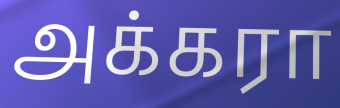
அக்கரா